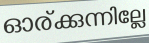
ഓര്ക്കുന്നില്ലേ